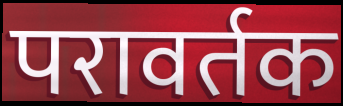
परावर्तक